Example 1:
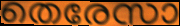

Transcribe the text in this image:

തെരേസാ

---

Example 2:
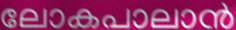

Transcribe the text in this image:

ലോകപാലാൻ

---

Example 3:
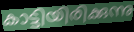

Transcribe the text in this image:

കാട്ടിയിരിക്കുന്നു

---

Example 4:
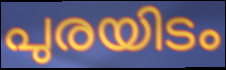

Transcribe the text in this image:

പുരയിടം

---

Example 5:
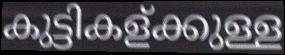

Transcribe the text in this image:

കുട്ടികള്ക്കുള്ള